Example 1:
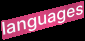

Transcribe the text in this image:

languages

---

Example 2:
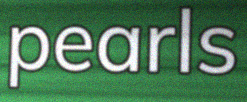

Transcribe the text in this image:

pearls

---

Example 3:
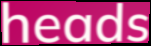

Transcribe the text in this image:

heads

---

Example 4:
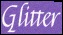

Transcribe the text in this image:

Glitter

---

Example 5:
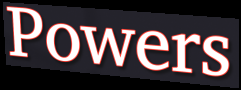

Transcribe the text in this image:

Powers